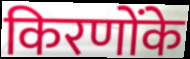
किरणोंके